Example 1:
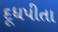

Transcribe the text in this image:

દૂધપીતા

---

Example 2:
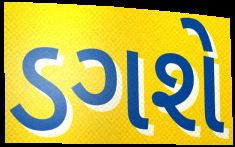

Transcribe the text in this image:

ડગશે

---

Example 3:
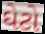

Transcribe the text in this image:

ઘેટો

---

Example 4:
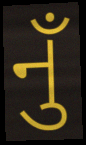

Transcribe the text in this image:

નુઁ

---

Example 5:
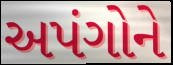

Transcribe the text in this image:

અપંગોને